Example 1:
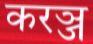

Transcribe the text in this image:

करञ्ज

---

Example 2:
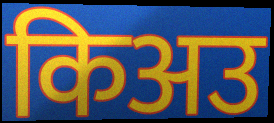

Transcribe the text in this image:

किअउ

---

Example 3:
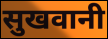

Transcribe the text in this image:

सुखवानी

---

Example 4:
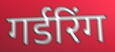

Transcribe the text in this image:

गर्डरिंग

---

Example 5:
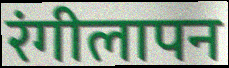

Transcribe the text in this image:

रंगीलापन